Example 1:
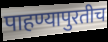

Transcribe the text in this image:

पाहण्यापुरतीच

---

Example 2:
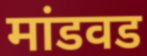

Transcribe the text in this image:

मांडवड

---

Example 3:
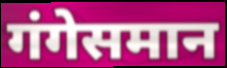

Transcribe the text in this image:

गंगेसमान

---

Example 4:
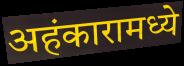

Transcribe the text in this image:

अहंकारामध्ये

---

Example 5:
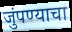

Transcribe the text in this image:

जुंपण्याचा